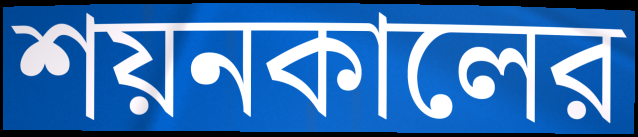
শয়নকালের